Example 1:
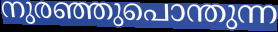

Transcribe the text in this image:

നുരഞ്ഞുപൊന്തുന്ന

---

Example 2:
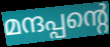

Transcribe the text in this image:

മന്ദപ്പന്റെ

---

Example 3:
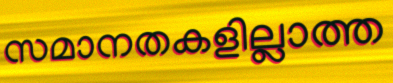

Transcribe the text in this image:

സമാനതകളില്ലാത്ത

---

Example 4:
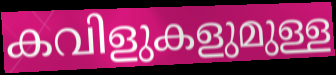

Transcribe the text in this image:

കവിളുകളുമുള്ള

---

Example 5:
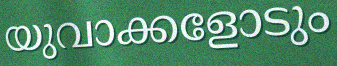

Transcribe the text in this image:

യുവാക്കളോടും